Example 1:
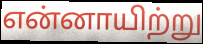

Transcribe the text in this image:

என்னாயிற்று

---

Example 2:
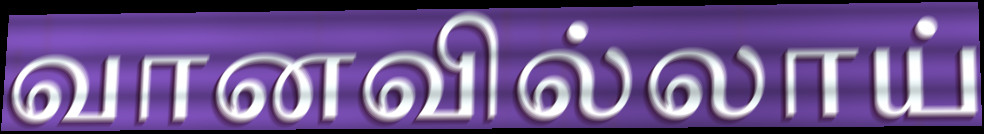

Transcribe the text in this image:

வானவில்லாய்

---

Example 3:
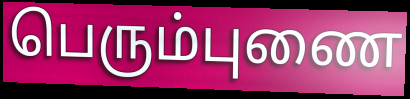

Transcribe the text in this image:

பெரும்புணை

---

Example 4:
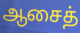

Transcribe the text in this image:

ஆசைத்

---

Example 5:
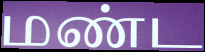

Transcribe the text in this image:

மண்ட